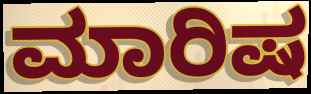
ಮಾರಿಷ